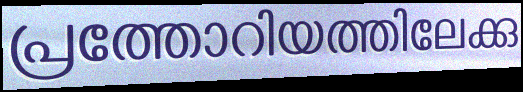
പ്രത്തോറിയത്തിലേക്കു